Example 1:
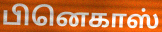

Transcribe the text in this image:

பினெகாஸ்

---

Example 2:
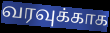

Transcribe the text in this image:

வரவுக்காக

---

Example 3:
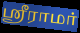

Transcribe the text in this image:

ஶ்ரீராமர்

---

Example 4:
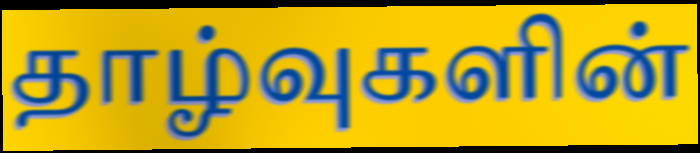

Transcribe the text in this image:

தாழ்வுகளின்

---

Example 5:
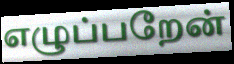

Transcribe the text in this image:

எழுப்பறேன்